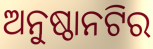
ଅନୁଷ୍ଠାନଟିର